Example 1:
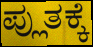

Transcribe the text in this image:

ಪ್ಲುತಕ್ಕೆ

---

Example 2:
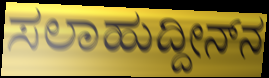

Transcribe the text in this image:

ಸಲಾಹುದ್ದೀನ್‍ನ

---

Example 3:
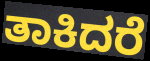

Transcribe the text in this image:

ತಾಕಿದರೆ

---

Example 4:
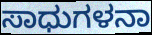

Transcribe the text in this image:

ಸಾಧುಗಳನಾ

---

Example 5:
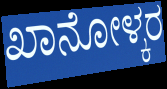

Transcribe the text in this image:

ಖಾನೋಳ್ಕರ